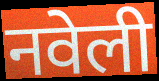
नवेली